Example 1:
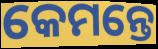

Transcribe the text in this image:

କେମନ୍ତେ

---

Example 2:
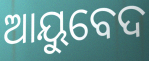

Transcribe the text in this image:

ଆୟୁବେଦ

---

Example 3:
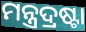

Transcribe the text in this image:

ମନ୍ତ୍ରଦ୍ରଷ୍ଟା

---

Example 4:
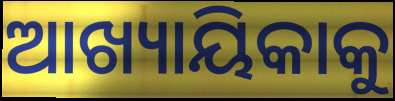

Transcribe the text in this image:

ଆଖ୍ୟାୟିକାକୁ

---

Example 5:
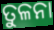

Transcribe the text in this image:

ତୁଳନା